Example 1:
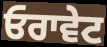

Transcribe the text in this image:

ਓਰਾਵੇਟ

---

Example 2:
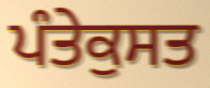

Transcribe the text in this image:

ਪੰਤੇਕੁਸਤ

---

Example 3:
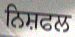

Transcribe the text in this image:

ਨਿਸ਼ਫਲ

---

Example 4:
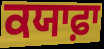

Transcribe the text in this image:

ਕਯਾਫ਼ਾ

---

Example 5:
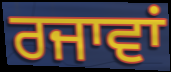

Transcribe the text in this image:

ਰਜਾਵਾਂ